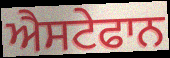
ਐਸਟੇਫਾਨ